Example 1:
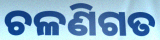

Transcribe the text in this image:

ଚଳଣିଗତ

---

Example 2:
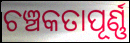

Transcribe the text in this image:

ଚଞ୍ଚକତାପୂର୍ଣ୍ଣ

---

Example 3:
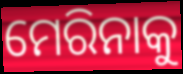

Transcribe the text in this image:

ମେରିନାକୁ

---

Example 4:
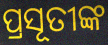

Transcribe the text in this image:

ପ୍ରସୂତୀଙ୍କ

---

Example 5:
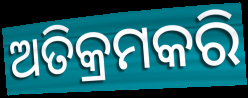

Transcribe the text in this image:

ଅତିକ୍ରମକରି